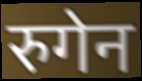
रुगेन